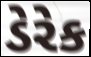
ડેરેક